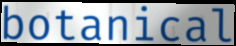
botanical